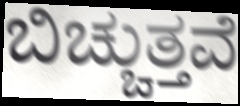
ಬಿಚ್ಚುತ್ತವೆ